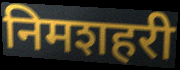
निमशहरी